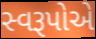
સ્વરૂપોએ